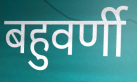
बहुवर्णी